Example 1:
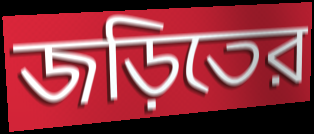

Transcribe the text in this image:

জড়িতের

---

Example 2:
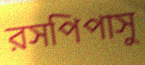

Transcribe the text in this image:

রসপিপাসু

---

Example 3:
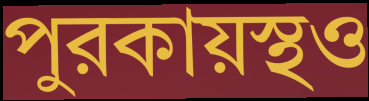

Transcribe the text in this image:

পুরকায়স্থও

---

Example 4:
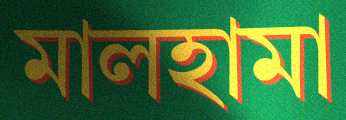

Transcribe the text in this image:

মালহামা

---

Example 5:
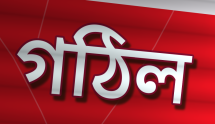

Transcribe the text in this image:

গঠিল